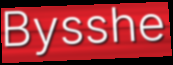
Bysshe